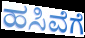
ಹಸಿವೆಗೆ